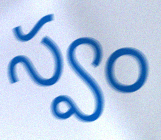
స్వం